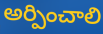
అర్పించాలి